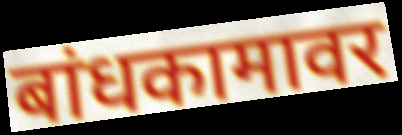
बांधकामावर